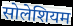
सोलेशियम